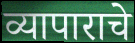
व्यापाराचे